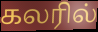
கலரில்